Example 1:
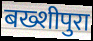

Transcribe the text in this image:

बख्शीपुरा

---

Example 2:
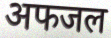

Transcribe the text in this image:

अफजल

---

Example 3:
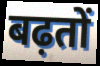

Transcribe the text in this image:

बढ़तों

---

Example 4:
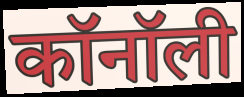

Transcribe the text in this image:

कॉनॉली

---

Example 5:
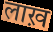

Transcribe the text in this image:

लाख़